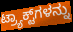
ಟ್ರ್ಯಾಕ್ಟ್‌ಗಳನ್ನು